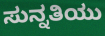
ಸುನ್ನತಿಯು